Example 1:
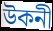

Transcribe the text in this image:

উকনী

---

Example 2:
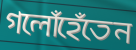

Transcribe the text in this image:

গলোঁহেঁতেন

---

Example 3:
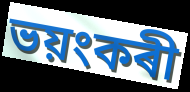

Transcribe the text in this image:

ভয়ংকৰী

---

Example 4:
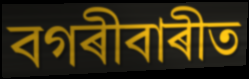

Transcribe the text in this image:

বগৰীবাৰীত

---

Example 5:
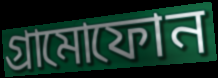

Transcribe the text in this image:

গ্ৰামোফোন